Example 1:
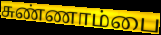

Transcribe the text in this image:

சுண்ணாம்பை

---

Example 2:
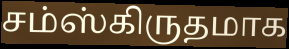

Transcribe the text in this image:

சம்ஸ்கிருதமாக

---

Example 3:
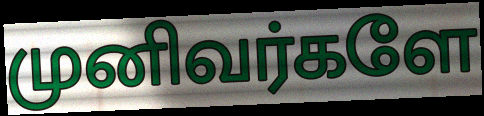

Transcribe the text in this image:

முனிவர்களே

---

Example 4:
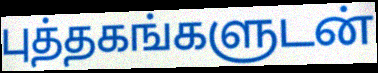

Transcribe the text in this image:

புத்தகங்களுடன்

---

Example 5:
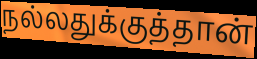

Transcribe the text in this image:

நல்லதுக்குத்தான்